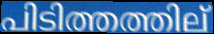
പിടിത്തത്തില്